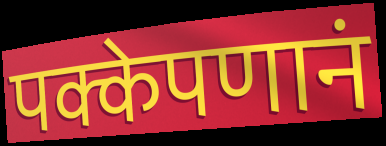
पक्केपणानं